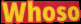
Whoso